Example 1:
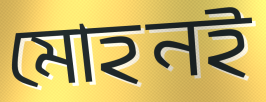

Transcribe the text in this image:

মোহনই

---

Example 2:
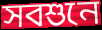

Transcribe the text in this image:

সবশুনে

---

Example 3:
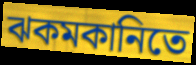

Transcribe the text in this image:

ঝকমকানিতে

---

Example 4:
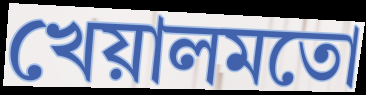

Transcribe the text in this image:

খেয়ালমতো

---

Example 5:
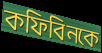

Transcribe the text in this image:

কফিবিনকে